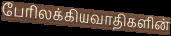
பேரிலக்கியவாதிகளின்